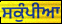
ਸਕੁੰਪੀਆ